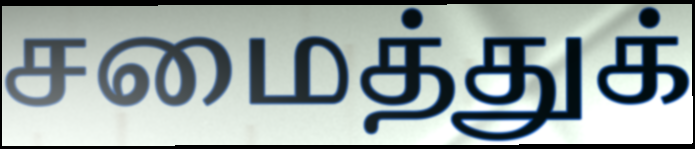
சமைத்துக்